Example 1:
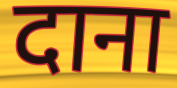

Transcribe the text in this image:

दाना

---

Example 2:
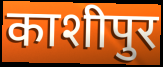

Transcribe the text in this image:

काशीपुर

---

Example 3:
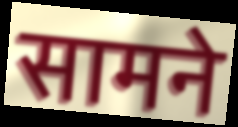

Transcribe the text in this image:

सामने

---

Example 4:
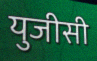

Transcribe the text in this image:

युजीसी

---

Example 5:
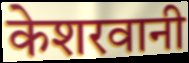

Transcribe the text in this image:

केशरवानी